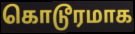
கொடூரமாக